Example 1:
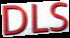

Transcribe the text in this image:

DLS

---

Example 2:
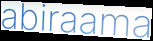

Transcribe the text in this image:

abiraama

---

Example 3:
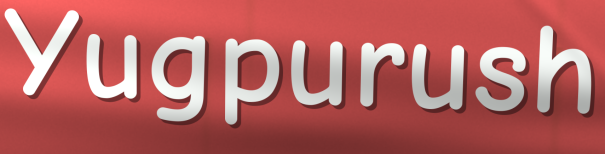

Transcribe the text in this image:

Yugpurush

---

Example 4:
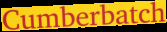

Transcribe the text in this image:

Cumberbatch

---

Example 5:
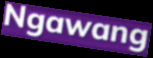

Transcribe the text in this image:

Ngawang